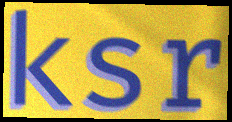
ksr